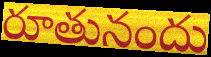
రూతునందు